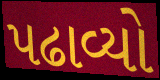
પઢાવ્યો